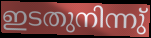
ഇടതുനിന്നു്